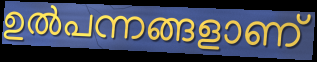
ഉൽപന്നങ്ങളാണ്